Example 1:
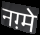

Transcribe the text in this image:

नग़्मे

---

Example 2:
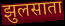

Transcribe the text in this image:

झुलसाता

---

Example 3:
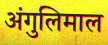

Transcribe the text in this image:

अंगुलिमाल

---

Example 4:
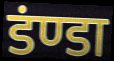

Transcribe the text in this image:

डंण्डा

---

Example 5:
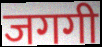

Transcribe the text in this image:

जगगी